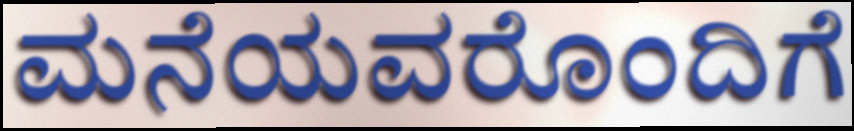
ಮನೆಯವರೊಂದಿಗೆ